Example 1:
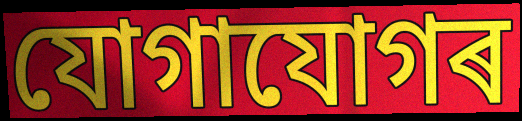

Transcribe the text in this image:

যোগাযোগৰ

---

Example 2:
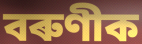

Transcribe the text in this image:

বৰুণীক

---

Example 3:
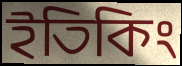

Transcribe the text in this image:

ইতিকিং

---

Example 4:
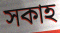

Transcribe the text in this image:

সকাহ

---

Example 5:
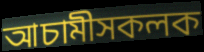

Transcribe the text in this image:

আচামীসকলক